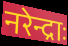
नरेन्द्राः